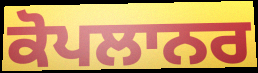
ਕੋਪਲਾਨਰ